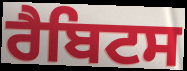
ਰੈਬਿਟਸ